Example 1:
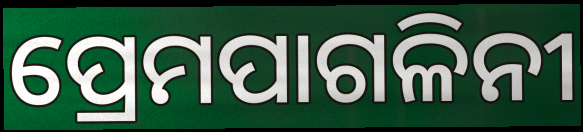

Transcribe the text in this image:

ପ୍ରେମପାଗଳିନୀ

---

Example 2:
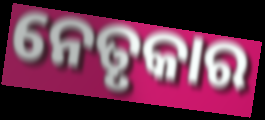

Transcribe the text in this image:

ନେତୃକାର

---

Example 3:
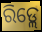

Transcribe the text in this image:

ରିଡ୍ଲେ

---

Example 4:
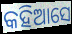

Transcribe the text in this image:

କହିଆସେ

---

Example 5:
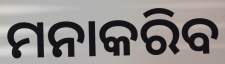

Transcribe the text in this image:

ମନାକରିବ